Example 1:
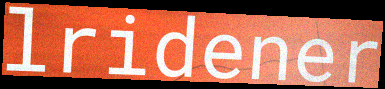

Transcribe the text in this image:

lridener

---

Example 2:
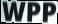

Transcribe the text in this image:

WPP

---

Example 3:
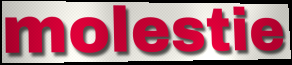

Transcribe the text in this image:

molestie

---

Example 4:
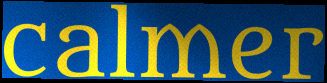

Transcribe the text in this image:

calmer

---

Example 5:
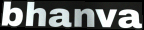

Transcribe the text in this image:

bhanva